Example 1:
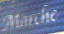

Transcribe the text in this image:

Marche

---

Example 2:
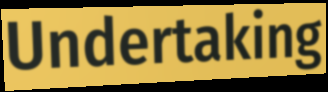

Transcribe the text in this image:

Undertaking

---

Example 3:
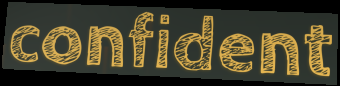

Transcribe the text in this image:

confident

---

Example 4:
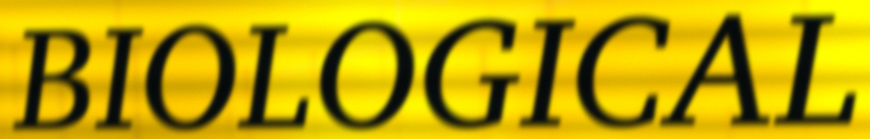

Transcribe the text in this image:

BIOLOGICAL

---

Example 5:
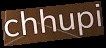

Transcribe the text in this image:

chhupi